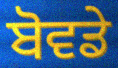
ਬੋਵਡੇ